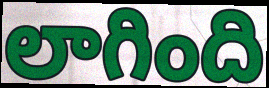
లాగింది